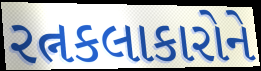
રત્નકલાકારોને